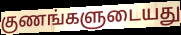
குணங்களுடையது